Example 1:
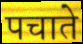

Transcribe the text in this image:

पचाते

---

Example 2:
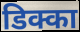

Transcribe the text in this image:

डिक्का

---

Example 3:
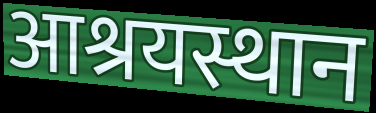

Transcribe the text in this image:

आश्रयस्थान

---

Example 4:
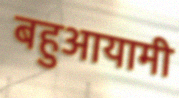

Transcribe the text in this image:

बहुआयामी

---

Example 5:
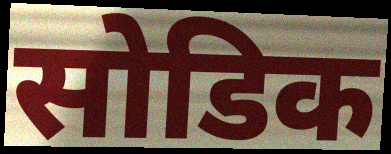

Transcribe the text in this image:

सोडिक